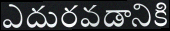
ఎదురవడానికి